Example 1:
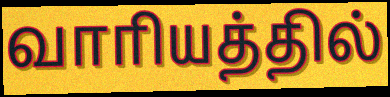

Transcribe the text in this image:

வாரியத்தில்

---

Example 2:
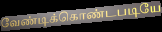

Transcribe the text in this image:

வேண்டிக்கொண்டபடியே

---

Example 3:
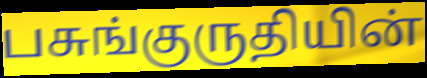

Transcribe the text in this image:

பசுங்குருதியின்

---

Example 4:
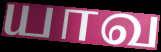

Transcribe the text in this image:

யாவ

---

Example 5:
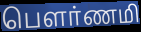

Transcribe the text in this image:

பௌர்ணமி